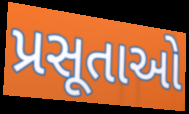
પ્રસૂતાઓ